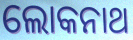
ଲୋକନାଥ